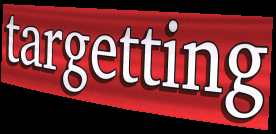
targetting